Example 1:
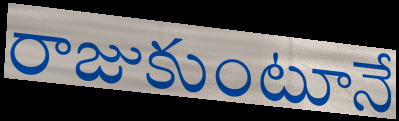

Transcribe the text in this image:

రాజుకుంటూనే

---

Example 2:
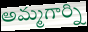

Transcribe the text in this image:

అమ్మగార్ని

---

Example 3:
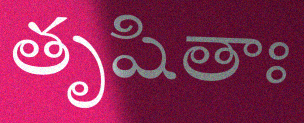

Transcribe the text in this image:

తృషితాః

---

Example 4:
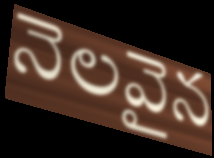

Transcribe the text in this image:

నెలవైన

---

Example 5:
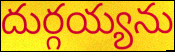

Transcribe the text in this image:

దుర్గయ్యను